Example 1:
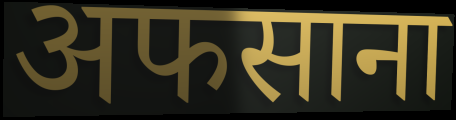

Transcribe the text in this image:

अफसाना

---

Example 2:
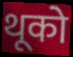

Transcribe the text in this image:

थूको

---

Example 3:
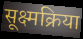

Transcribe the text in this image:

सूक्ष्मक्रिया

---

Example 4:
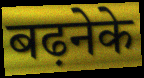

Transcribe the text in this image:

बढ़नेके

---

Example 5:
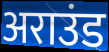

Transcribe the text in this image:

अराउंड